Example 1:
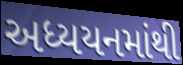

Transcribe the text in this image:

અધ્યયનમાંથી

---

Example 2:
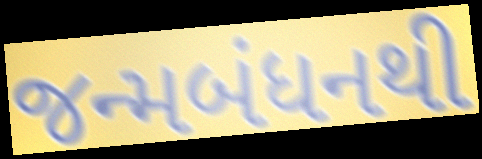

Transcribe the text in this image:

જન્મબંધનથી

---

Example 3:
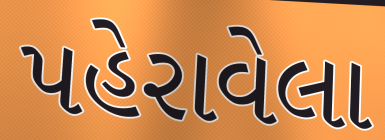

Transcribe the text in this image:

પહેરાવેલા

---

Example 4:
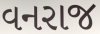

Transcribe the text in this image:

વનરાજ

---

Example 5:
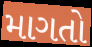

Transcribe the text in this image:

માગતો